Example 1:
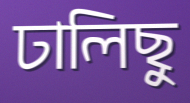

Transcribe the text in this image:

ঢালিছু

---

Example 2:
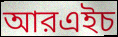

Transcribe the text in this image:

আরএইচ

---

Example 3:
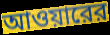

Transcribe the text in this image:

আওয়ারের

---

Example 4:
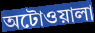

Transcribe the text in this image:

অটোওয়ালা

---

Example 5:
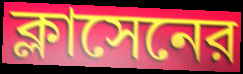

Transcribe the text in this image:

ক্লাসেনের